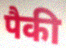
पैकी